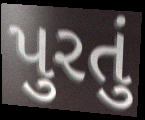
પુરતું